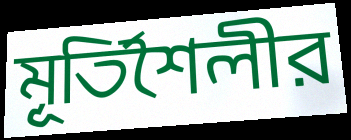
মূর্তিশৈলীর